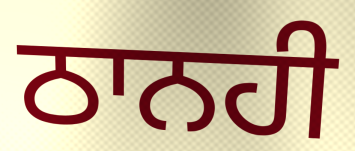
ਠਾਨਹੀ